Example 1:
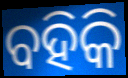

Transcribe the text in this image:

ବହିକି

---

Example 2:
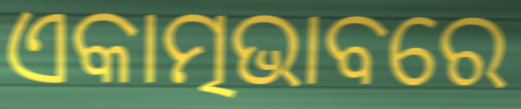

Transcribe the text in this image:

ଏକାତ୍ମଭାବରେ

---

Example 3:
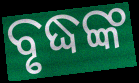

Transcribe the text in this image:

ବୃଦ୍ଧଙ୍କ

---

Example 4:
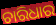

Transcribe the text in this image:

ଚାରିଧାର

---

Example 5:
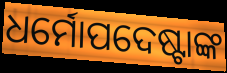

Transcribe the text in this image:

ଧର୍ମୋପଦେଷ୍ଟାଙ୍କ